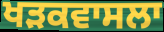
ਖੜਕਵਾਸਲਾ